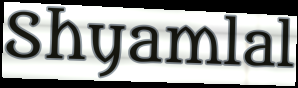
Shyamlal